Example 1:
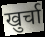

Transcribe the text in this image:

खुर्चा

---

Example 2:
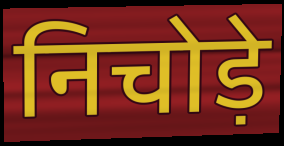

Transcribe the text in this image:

निचोड़े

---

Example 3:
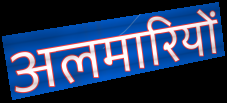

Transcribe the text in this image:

अलमारियों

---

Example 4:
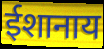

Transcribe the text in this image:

ईशानाय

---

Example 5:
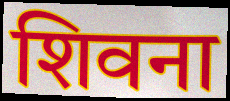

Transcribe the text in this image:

शिवना